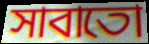
সাবাতো